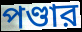
পণ্ডার